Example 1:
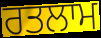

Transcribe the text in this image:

ਰਤਲਾਮ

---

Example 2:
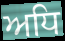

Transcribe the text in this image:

ਅਧਿ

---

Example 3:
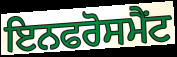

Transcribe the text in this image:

ਇਨਫਰੋਸਮੈਂਟ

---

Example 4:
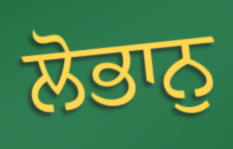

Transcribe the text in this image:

ਲੋਭਾਨੁ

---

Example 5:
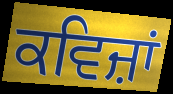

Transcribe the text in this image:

ਕਵਿਜ਼ਾਂ